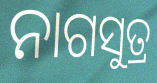
ନାଗସୁତ୍ର